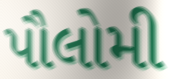
પૌલોમી